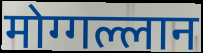
मोग्गल्लान